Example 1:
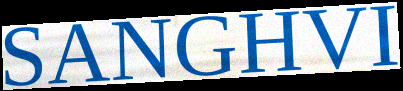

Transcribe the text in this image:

SANGHVI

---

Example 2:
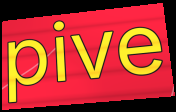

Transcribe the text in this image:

pive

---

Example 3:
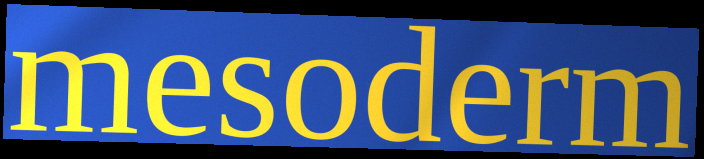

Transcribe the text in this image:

mesoderm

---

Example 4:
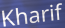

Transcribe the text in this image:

Kharif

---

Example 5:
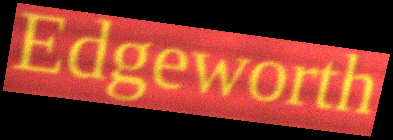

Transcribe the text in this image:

Edgeworth